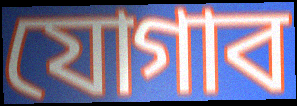
যোগাব